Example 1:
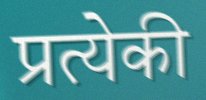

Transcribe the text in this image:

प्रत्येकी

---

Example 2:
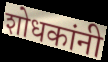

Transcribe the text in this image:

शोधकांनी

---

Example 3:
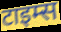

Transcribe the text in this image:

टाइम्स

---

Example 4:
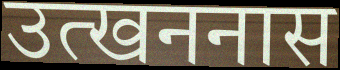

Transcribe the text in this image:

उत्खननास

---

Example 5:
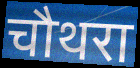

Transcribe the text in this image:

चौथरा